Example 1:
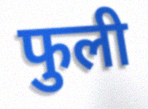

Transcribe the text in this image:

फुली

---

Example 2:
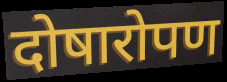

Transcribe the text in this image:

दोषारोपण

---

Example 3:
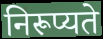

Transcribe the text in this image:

निरूप्यते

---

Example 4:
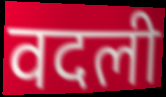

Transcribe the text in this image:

वदली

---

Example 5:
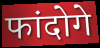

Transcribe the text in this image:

फांदोगे